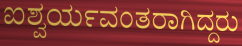
ಐಶ್ವರ್ಯವಂತರಾಗಿದ್ದರು